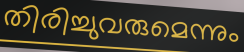
തിരിച്ചുവരുമെന്നും